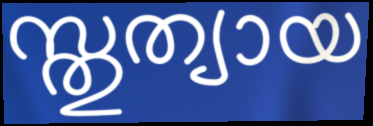
സ്തുത്യായ